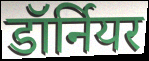
डॉर्नियर